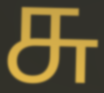
சு